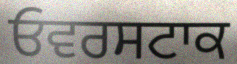
ਓਵਰਸਟਾਕ